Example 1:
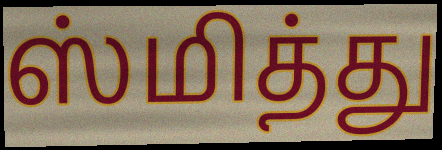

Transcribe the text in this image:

ஸ்மித்து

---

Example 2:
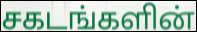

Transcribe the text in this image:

சகடங்களின்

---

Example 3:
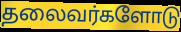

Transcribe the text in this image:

தலைவர்களோடு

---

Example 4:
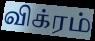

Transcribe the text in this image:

விக்ரம்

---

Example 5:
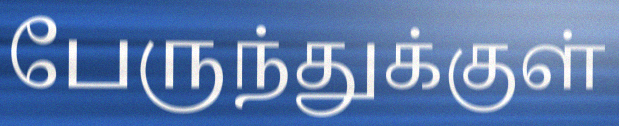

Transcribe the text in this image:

பேருந்துக்குள்